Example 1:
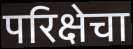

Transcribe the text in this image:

परिक्षेचा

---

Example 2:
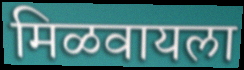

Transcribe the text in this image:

मिळवायला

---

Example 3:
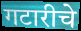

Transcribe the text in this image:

गटारीचे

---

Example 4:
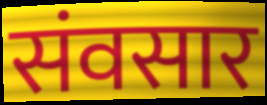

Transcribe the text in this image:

संवसार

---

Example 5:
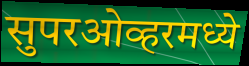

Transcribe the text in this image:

सुपरओव्हरमध्ये